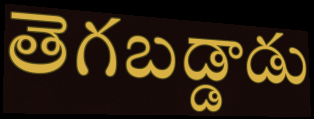
తెగబడ్డాడు